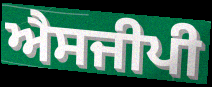
ਐਸਜੀਪੀ